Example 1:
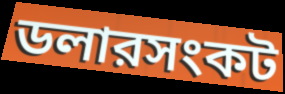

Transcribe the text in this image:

ডলারসংকট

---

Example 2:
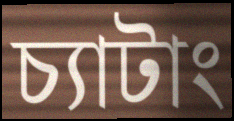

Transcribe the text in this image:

চ্যাটাং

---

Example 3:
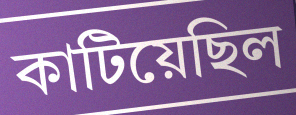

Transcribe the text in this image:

কাটিয়েছিল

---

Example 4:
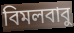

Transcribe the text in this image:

বিমলবাবু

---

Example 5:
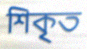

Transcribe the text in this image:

শিকৃত